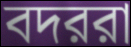
বদররা